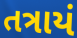
તત્રાયં